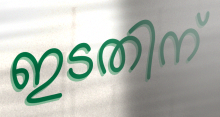
ഇടതിന്